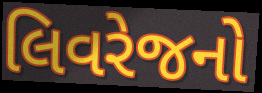
લિવરેજનો